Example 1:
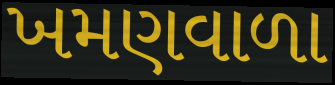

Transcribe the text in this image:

ખમણવાળા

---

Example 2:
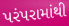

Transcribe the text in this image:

પરંપરામાંથી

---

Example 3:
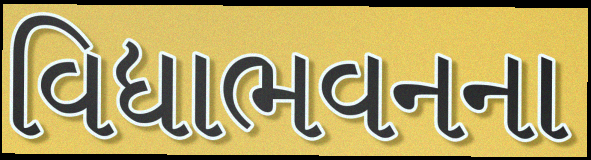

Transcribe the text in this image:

વિદ્યાભવનના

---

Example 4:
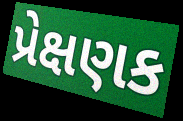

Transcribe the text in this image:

પ્રેક્ષણક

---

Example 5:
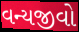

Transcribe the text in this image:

વન્યજીવો